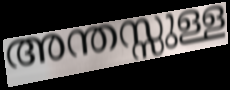
അന്തസ്സുള്ള